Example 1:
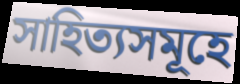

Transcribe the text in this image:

সাহিত্যসমূহে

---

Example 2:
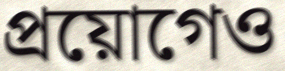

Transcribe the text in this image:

প্ৰয়োগেও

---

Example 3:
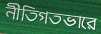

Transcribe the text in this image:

নীতিগতভাৱে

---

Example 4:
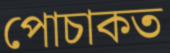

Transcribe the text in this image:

পোচাকত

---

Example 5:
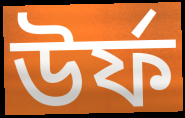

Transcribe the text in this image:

উৰ্ফ